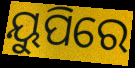
ୟୁପିରେ